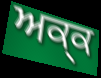
ਅਕ੍ਕ